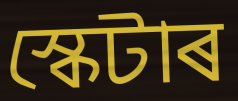
স্কেটাৰ